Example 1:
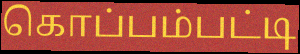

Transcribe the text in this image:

கொப்பம்பட்டி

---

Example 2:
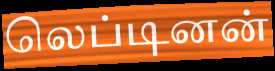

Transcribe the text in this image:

லெப்டினன்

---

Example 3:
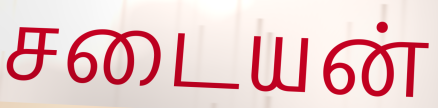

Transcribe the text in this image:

சடையன்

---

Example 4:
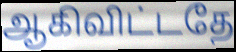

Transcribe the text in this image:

ஆகிவிட்டதே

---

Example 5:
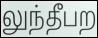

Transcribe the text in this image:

லுந்தீபற